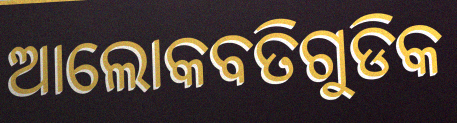
ଆଲୋକବତିଗୁଡିକ